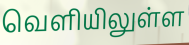
வெளியிலுள்ள